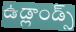
ఉడ్లాండ్స్